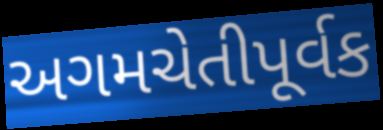
અગમચેતીપૂર્વક